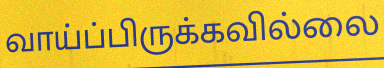
வாய்ப்பிருக்கவில்லை